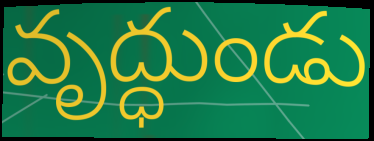
వృద్ధుండు